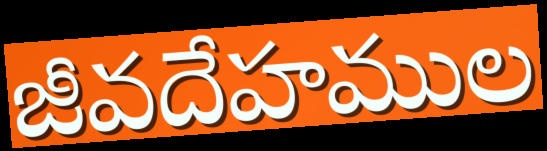
జీవదేహముల